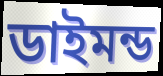
ডাইমন্ড